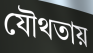
যৌথতায়